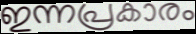
ഇന്നപ്രകാരം